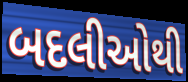
બદલીઓથી